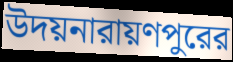
উদয়নারায়ণপুরের